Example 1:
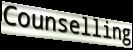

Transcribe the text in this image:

Counselling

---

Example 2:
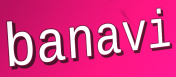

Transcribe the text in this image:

banavi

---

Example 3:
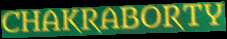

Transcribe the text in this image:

CHAKRABORTY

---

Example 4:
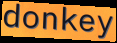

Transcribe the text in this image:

donkey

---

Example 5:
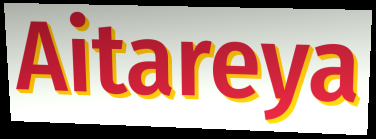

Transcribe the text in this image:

Aitareya